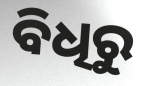
ବିଧିରୁ